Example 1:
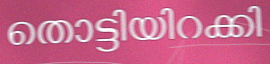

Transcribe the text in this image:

തൊട്ടിയിറക്കി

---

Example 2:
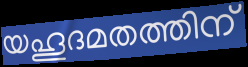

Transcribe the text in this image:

യഹൂദമതത്തിന്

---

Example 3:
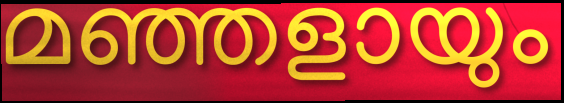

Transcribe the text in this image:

മഞ്ഞളായും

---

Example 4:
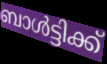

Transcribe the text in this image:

ബാൾട്ടിക്ക്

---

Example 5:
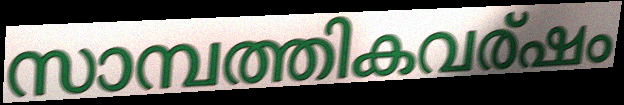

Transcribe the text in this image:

സാമ്പത്തികവര്ഷം